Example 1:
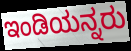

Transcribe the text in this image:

ಇಂಡಿಯನ್ನರು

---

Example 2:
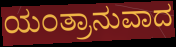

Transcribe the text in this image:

ಯಂತ್ರಾನುವಾದ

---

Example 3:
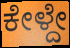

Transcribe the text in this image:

ಕೇಳ್ದೇ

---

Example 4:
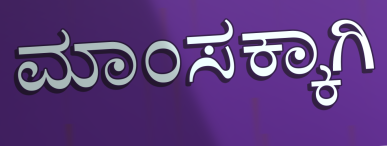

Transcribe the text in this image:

ಮಾಂಸಕ್ಕಾಗಿ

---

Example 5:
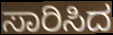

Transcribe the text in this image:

ಸಾರಿಸಿದ